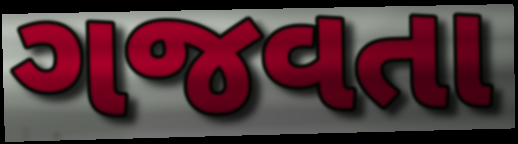
ગજવતા